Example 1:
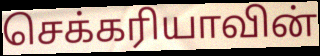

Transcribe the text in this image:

செக்கரியாவின்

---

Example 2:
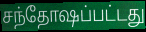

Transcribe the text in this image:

சந்தோஷப்பட்டது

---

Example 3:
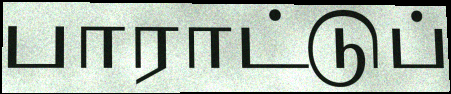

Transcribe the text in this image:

பாராட்டுப்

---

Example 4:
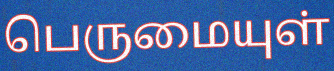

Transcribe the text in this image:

பெருமையுள்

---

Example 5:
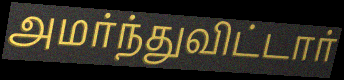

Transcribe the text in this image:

அமர்ந்துவிட்டார்